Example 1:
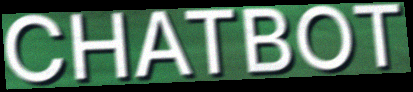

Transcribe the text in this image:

CHATBOT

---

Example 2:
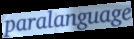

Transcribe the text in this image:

paralanguage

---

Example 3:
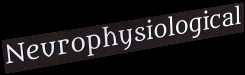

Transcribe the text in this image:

Neurophysiological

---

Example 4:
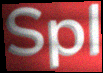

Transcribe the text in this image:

Spl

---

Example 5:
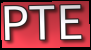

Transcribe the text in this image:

PTE